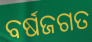
ବର୍ଷଜଗତ